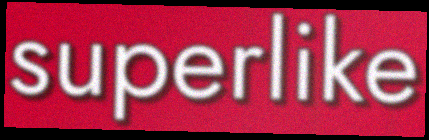
superlike